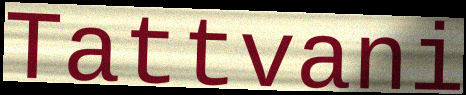
Tattvani